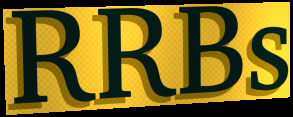
RRBs